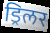
ड्रिलर